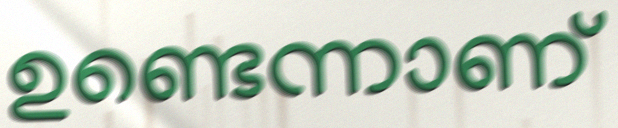
ഉണ്ടെന്നാണ്